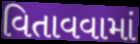
વિતાવવામાં